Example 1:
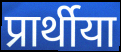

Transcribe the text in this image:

प्रार्थीया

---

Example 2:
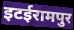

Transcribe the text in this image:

इटईरामपुर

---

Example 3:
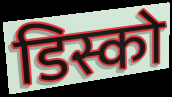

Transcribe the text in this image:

डिस्को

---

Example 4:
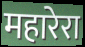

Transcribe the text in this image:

महारेरा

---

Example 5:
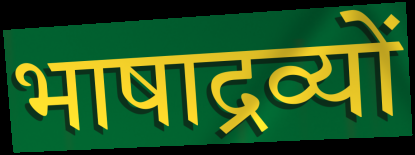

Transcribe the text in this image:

भाषाद्रव्यों